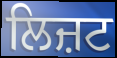
ਲਿਜ਼ਟ